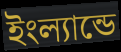
ইংল্যান্ডে